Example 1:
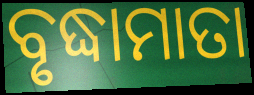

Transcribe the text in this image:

ବୃଦ୍ଧାମାତା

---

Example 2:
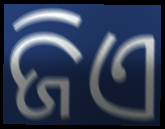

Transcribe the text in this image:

ଜିଏ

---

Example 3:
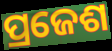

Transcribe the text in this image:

ପ୍ରଜେଶ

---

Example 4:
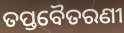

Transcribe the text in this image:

ତପ୍ତବୈତରଣୀ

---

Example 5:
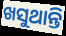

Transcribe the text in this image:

ଖସୁଥାନ୍ତି